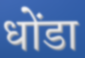
धोंडा